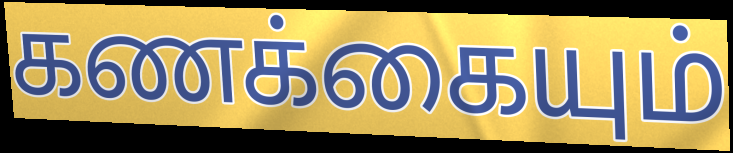
கணக்கையும்